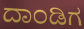
ದಾಂಡಿಗ